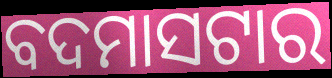
ବଦମାସଟାର